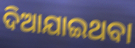
ଦିଆଯାଇଥବା